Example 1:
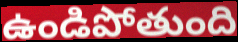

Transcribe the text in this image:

ఉండిపోతుంది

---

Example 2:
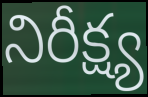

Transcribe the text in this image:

నిరీక్ష్య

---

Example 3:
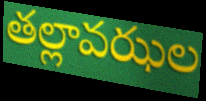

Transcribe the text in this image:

తల్లావఝల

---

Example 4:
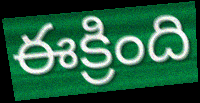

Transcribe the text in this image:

ఈక్రింది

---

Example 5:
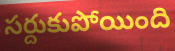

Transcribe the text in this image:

సర్దుకుపోయింది